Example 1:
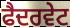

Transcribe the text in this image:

ਫੈਦਰਵੇਟ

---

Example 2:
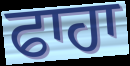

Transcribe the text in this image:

ਫਾਹਾ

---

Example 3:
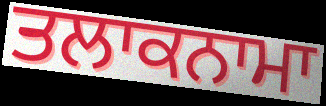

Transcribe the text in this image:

ਤਲਾਕਨਾਮਾ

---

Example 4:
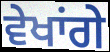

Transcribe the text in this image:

ਵੇਖਾਂਗੇ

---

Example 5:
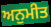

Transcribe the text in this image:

ਅਨੁਮੀਤ